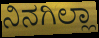
ನಿನಗಿಲ್ಲಾ